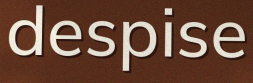
despise